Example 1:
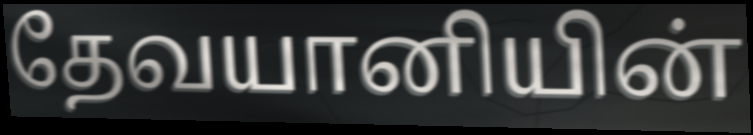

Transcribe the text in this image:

தேவயானியின்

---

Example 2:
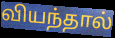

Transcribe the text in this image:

வியந்தால்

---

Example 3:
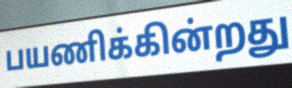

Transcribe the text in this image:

பயணிக்கின்றது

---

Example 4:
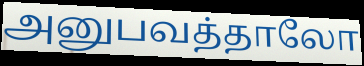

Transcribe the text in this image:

அனுபவத்தாலோ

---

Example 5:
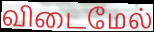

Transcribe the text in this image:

விடைமேல்